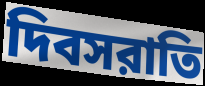
দিবসরাতি